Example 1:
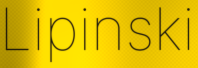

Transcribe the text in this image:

Lipinski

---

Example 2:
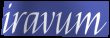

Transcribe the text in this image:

iravum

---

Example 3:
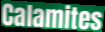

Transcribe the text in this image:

Calamites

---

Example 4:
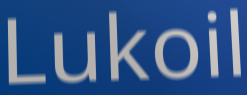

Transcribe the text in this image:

Lukoil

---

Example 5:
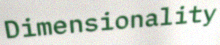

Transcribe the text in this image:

Dimensionality